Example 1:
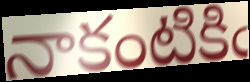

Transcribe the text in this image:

నాకంటికిఁ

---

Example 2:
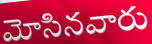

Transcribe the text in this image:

మోసినవారు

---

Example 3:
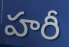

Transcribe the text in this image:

హరీ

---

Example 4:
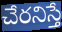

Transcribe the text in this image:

చేరనిస్తే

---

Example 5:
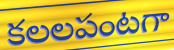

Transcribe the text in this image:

కలలపంటగా